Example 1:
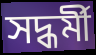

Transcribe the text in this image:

সদ্ধর্মী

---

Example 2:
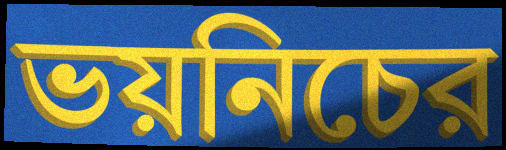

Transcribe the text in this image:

ভয়নিচের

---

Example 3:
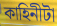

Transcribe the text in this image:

কাহিনীটা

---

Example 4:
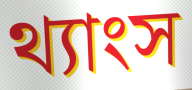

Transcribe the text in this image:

থ্যাংস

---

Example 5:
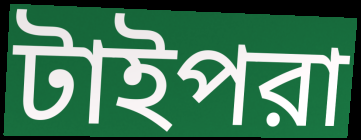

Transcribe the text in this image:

টাইপরা